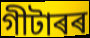
গীটাৰৰ